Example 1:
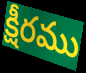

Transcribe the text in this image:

క్షీరము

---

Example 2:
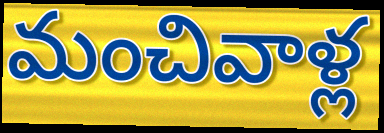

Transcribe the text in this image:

మంచివాళ్ల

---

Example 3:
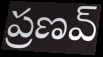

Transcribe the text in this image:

ప్రణవ్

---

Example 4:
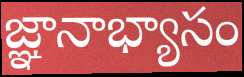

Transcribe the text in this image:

జ్ఞానాభ్యాసం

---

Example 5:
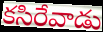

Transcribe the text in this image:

కసిరేవాడు